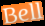
Bell